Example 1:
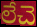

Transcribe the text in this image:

లేచె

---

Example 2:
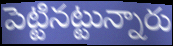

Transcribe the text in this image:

పెట్టినట్టున్నారు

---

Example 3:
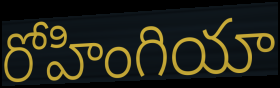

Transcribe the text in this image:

రోహింగియా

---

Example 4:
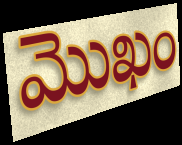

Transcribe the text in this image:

మొఖం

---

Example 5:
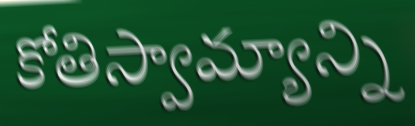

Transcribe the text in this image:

కోతిస్వామ్యాన్ని